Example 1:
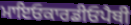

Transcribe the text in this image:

ਮਾਇਓਕਾਰਡੀਓਪੈਥੀ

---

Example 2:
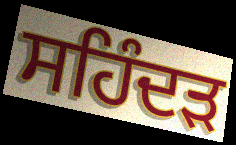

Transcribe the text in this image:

ਸਹਿੰਦੜ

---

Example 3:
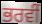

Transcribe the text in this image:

ਭਰਵੀਂ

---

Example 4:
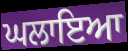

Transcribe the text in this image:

ਘਲਾਇਆ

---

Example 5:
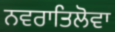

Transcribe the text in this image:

ਨਵਰਾਤਿਲੋਵਾ